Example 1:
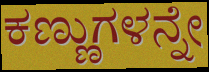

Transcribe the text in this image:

ಕಣ್ಣುಗಳನ್ನೇ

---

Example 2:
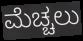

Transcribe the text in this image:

ಮೆಚ್ಚಲು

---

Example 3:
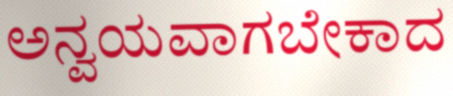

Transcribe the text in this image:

ಅನ್ವಯವಾಗಬೇಕಾದ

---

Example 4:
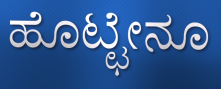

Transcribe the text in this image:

ಹೊಟ್ಟೇನೂ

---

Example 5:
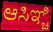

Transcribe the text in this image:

ಆಸಿಞ್ಚಿ